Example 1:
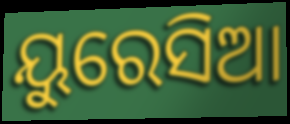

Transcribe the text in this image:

ୟୁରେସିଆ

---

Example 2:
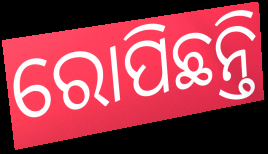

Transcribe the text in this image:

ରୋପିଛନ୍ତି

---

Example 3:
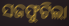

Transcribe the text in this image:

ସଜଫୁଟିଲା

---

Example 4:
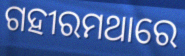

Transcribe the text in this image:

ଗହୀରମଥାରେ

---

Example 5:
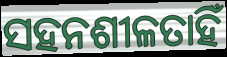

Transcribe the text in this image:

ସହନଶୀଳତାହିଁ